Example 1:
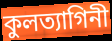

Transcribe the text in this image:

কুলত্যাগিনী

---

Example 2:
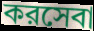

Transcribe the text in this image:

করসেবা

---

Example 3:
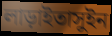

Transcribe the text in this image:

লাড়াইতাসুইন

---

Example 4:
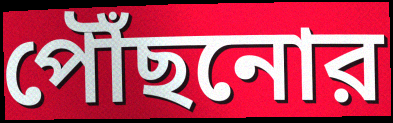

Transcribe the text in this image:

পৌঁছনোর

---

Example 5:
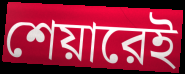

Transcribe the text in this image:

শেয়ারেই